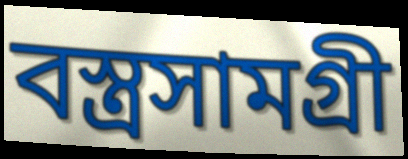
বস্ত্রসামগ্রী